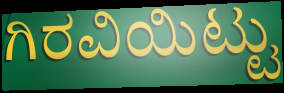
ಗಿರವಿಯಿಟ್ಟು